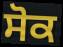
ਸੋਕ